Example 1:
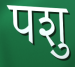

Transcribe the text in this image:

पशु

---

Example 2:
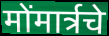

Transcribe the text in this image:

मोंमार्त्रचे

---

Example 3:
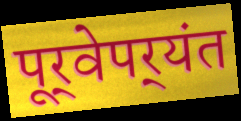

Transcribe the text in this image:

पूर्वेपर्यंत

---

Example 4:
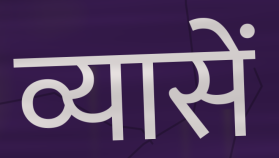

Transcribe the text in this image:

व्यासें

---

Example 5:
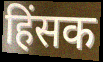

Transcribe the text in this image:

हिंसक